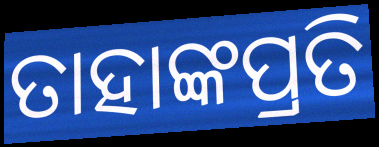
ତାହାଙ୍କପ୍ରତି